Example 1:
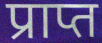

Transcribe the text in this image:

प्राप्‍त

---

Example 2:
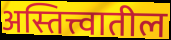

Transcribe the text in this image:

अस्तित्त्वातील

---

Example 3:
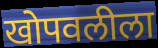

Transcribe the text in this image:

खोपवलीला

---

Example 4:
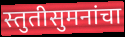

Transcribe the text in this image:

स्तुतीसुमनांचा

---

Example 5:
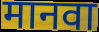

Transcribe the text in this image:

मानवा